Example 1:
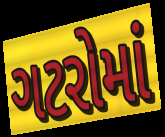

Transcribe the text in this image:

ગટરોમાં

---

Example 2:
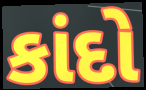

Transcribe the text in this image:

કાંદો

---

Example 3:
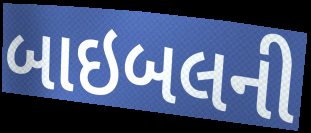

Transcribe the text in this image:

બાઇબલની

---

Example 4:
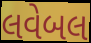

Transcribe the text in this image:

લવેબલ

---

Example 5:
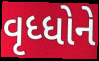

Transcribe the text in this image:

વૃધ્ધોને